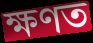
ক্ষণত